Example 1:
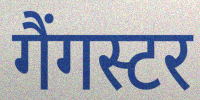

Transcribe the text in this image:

गैंगस्टर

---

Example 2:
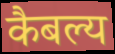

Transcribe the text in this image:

कैबल्य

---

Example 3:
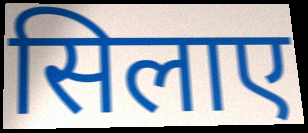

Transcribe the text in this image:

सिलाए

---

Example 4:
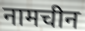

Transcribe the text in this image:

नामचीन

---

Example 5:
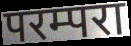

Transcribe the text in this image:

परम्परा